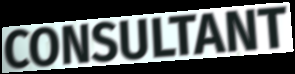
CONSULTANT